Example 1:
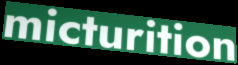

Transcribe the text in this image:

micturition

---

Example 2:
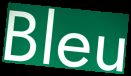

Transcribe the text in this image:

Bleu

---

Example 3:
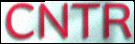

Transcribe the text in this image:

CNTR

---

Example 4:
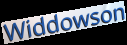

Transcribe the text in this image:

Widdowson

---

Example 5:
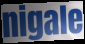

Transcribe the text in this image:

nigale